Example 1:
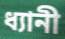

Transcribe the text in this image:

ধ্যানী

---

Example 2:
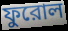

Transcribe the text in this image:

ফুরোল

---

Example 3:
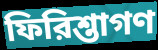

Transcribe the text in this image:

ফিরিশ্তাগণ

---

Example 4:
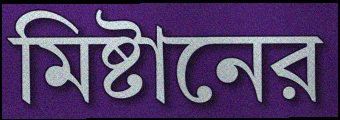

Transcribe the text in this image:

মিষ্টানের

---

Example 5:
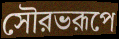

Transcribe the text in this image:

সৌরভরূপে